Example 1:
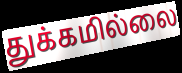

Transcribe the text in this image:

துக்கமில்லை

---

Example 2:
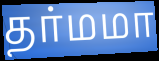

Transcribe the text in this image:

தர்மமா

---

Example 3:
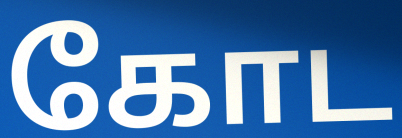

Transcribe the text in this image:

கோட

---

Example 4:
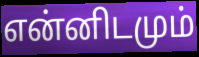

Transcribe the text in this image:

என்னிடமும்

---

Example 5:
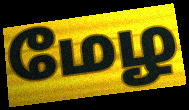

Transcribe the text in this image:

மேழ